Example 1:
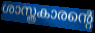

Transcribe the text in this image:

ശാസ്ത്രകാരന്റെ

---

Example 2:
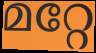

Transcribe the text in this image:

മറ്റേ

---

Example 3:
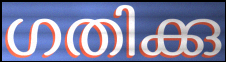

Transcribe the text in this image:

ഗതിക്കു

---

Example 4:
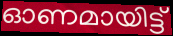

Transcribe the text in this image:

ഓണമായിട്ട്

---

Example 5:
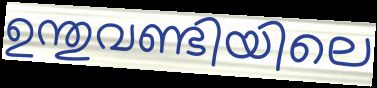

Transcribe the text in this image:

ഉന്തുവണ്ടിയിലെ